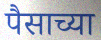
पैसाच्या